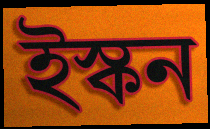
ইস্কন